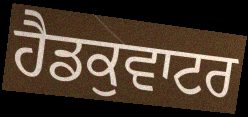
ਹੈਡਕੁਵਾਟਰ